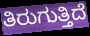
ತಿರುಗುತ್ತಿದೆ